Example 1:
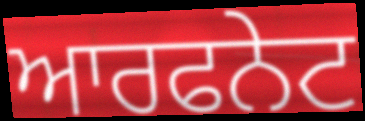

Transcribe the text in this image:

ਆਰਫਨੇਟ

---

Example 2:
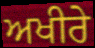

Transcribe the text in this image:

ਅਖੀਰੇ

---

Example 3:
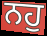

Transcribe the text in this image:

ਨਹੁ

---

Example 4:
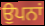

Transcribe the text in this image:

ਉਪਨਾਂ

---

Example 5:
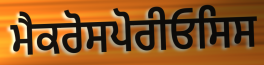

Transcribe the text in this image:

ਮੈਕਰੋਸਪੋਰੀਓਸਿਸ